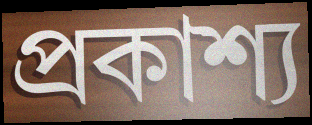
প্ৰকাশ্য